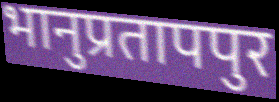
भानुप्रतापपुर